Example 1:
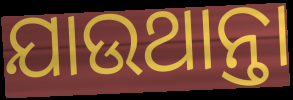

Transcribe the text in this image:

ଯାଉଥାନ୍ତା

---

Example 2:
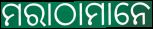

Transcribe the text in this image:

ମରାଠାମାନେ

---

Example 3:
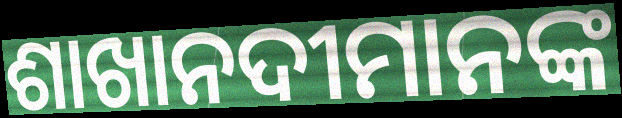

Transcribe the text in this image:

ଶାଖାନଦୀମାନଙ୍କ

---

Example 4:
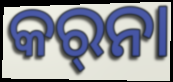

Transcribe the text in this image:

କର୍‌ନା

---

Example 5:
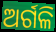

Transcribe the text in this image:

ଅର୍ଗଳି